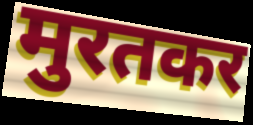
मुरतकर